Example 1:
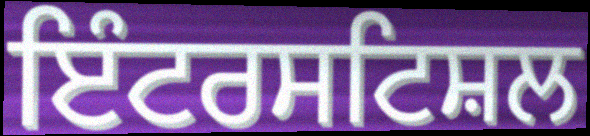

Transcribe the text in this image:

ਇੰਟਰਸਟਿਸ਼ਲ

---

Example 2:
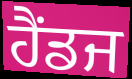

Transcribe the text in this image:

ਹੈਂਡਜ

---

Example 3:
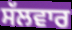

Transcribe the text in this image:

ਸੱਲਵਾਰ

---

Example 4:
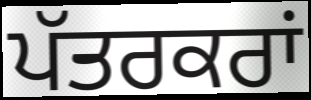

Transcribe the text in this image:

ਪੱਤਰਕਰਾਂ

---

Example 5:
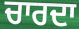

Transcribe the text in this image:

ਚਾਰਦਾ